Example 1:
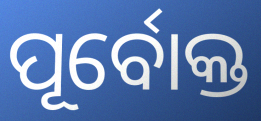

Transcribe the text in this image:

ପୂର୍ବୋକ୍ତ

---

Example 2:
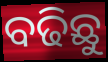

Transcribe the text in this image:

ବଢିଛୁ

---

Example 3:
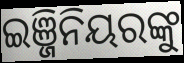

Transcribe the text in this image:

ଇଞ୍ଜିନିୟରଙ୍କୁ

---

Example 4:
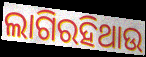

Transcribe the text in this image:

ଲାଗିରହିଥାଉ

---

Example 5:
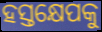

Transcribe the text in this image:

ହସ୍ତକ୍ଷେପକୁ